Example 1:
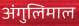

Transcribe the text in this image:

अंगुलिमाल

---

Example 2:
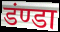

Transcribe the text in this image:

डंण्डा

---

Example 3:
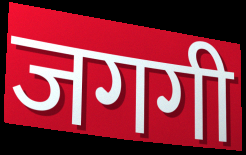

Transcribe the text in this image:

जगगी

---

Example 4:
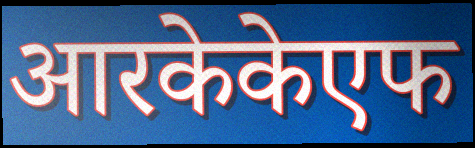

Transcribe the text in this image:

आरकेकेएफ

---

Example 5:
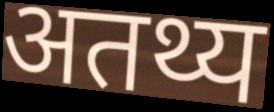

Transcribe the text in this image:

अतथ्य